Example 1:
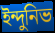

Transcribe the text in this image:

ইন্দুনিভ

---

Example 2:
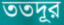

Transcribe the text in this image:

ততদূর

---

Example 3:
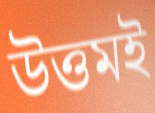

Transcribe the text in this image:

উত্তমই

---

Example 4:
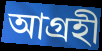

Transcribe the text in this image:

আগ্রহী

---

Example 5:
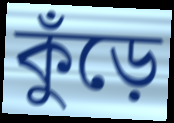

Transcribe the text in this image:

কুঁড়ে